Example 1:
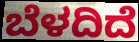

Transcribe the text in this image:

ಬೆಳದಿದೆ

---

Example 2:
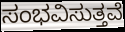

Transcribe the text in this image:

ಸಂಭವಿಸುತ್ತವೆ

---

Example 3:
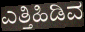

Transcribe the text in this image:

ಎತ್ತಿಹಿಡಿವ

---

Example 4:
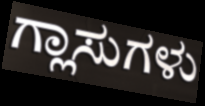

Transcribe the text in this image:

ಗ್ಲಾಸುಗಳು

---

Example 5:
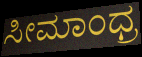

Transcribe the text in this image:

ಸೀಮಾಂಧ್ರ